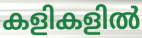
കളികളിൽ